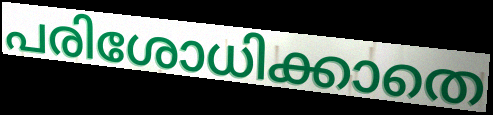
പരിശോധിക്കാതെ